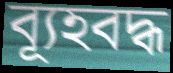
ব্যূহবদ্ধ